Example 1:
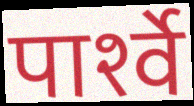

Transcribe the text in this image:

पार्श्वे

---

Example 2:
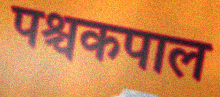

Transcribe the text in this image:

पश्चकपाल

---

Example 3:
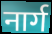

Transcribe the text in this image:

नार्ग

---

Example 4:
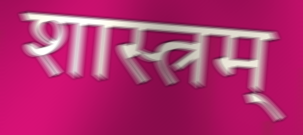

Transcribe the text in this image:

शास्त्रम्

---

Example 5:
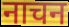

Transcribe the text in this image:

नाचन